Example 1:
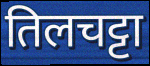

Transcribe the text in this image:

तिलचट्टा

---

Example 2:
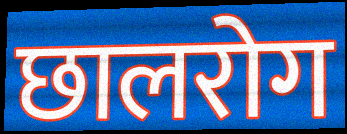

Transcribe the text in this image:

छालरोग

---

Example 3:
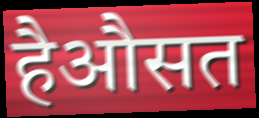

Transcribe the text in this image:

हैऔसत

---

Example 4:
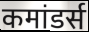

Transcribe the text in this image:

कमांडर्स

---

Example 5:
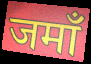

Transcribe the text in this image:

जमाँ